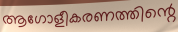
ആഗോളീകരണത്തിന്റെ